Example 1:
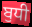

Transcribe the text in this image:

ਬੁਧੀ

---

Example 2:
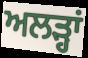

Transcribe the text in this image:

ਅਲੜ੍ਹਾਂ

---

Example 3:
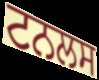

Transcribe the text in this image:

ਟਨਲਸ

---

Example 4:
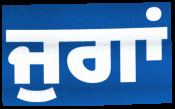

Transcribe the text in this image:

ਜੁਗਾਂ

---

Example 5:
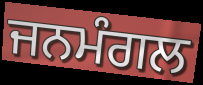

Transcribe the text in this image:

ਜਨਮੰਗਲ